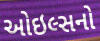
ઓઇલ્સનો